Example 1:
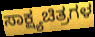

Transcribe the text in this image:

ಸಾಕ್ಷ್ಯಚಿತ್ರಗಳ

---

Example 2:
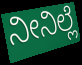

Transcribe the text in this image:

ನೀನಿಲ್ಲೆ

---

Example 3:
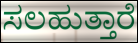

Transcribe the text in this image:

ಸಲಹುತ್ತಾರೆ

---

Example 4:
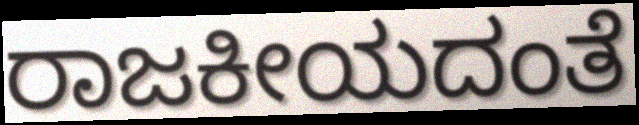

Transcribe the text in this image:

ರಾಜಕೀಯದಂತೆ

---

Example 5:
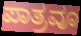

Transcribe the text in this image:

ಪಾತ್ರವೂ